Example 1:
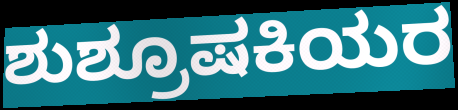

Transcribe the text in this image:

ಶುಶ್ರೂಷಕಿಯರ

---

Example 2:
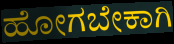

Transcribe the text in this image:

ಹೋಗಬೇಕಾಗಿ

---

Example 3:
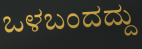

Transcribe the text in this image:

ಒಳಬಂದದ್ದು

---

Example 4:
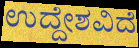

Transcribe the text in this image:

ಉದ್ದೇಶವಿದೆ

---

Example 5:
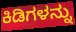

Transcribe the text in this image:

ಕಿಡಿಗಳನ್ನು